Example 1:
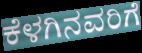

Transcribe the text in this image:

ಕೆಳಗಿನವರಿಗೆ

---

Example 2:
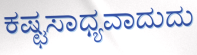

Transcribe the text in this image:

ಕಷ್ಟಸಾಧ್ಯವಾದುದು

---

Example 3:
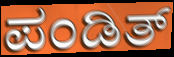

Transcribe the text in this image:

ಪಂಡಿತ್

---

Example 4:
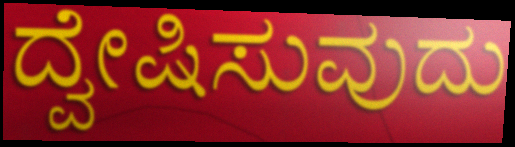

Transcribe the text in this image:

ದ್ವೇಷಿಸುವುದು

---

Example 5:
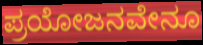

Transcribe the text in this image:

ಪ್ರಯೋಜನವೇನೂ